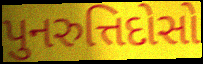
પુનરુત્તિદોસો